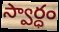
స్వార్ధం